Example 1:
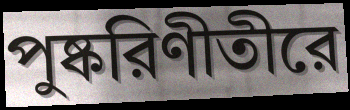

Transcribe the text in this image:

পুষ্করিণীতীরে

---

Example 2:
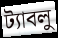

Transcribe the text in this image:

ট্যাবলু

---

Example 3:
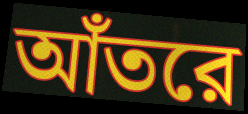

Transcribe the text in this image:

আঁতরে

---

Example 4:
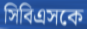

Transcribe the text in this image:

সিবিএসকে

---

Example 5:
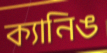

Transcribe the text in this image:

ক্যানিঙ